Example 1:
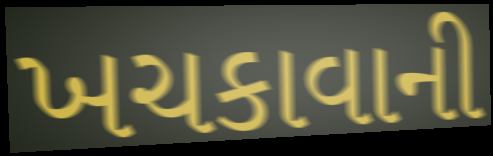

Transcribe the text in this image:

ખચકાવાની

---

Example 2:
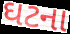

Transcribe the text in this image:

ઘટના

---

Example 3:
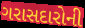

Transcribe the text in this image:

ગરાસદારોની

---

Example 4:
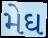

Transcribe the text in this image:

મેઘ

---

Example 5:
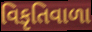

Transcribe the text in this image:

વિકૃતિવાળા